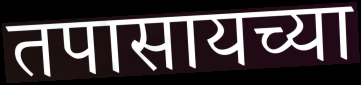
तपासायच्या